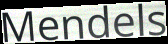
Mendels